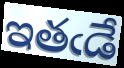
ఇతఁడే